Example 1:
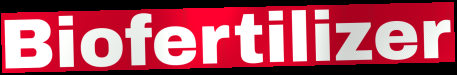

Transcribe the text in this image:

Biofertilizer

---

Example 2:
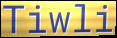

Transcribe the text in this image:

Tiwli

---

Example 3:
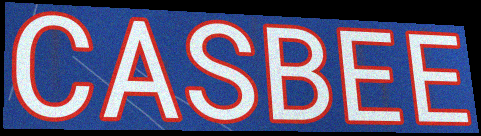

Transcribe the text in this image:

CASBEE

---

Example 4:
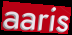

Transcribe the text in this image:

aaris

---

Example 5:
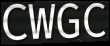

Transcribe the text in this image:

CWGC